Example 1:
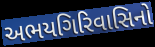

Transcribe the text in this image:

અભયગિરિવાસિનો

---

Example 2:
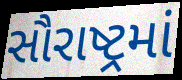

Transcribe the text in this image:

સૌરાષ્ટ્રમાં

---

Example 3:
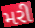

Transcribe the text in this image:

મરી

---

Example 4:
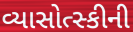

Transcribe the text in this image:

વ્યાસોત્સ્કીની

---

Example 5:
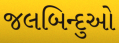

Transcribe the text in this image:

જલબિન્દુઓ